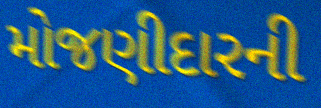
મોજણીદારની